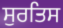
ਸੁਰਤਿਸ